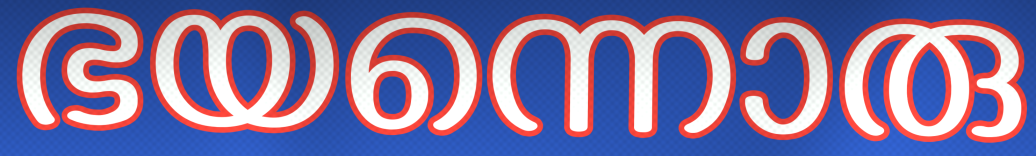
ഭയന്നൊരു